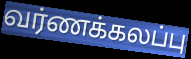
வர்ணக்கலப்பு